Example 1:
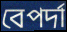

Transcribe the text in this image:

বেপর্দা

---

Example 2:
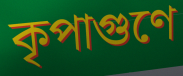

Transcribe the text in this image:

কৃপাগুণে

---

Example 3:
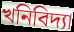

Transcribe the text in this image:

খনিবিদ্যা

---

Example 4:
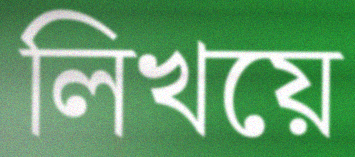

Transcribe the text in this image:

লিখয়ে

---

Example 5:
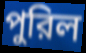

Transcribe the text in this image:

পুরিল